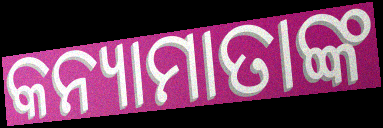
କନ୍ୟାମାତାଙ୍କ